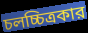
চলচ্চিত্রকার